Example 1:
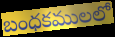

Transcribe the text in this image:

బంధకములలో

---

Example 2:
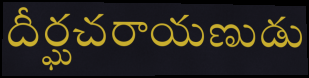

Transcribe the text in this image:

దీర్ఘచరాయణుడు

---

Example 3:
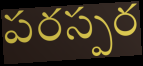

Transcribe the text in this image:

పరస్పర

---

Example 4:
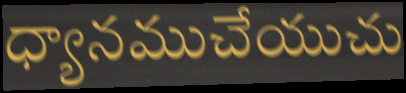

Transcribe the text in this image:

ధ్యానముచేయుచు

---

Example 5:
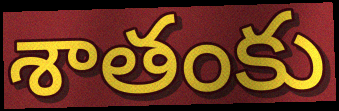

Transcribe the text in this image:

శాతంకు